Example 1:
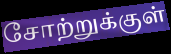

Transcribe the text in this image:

சோற்றுக்குள்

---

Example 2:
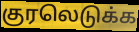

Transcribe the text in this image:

குரலெடுக்க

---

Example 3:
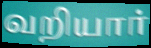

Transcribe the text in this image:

வறியார்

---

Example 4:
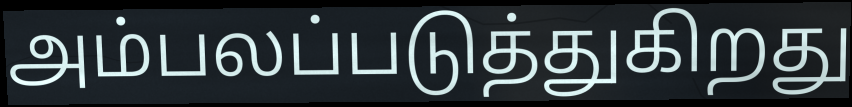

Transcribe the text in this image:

அம்பலப்படுத்துகிறது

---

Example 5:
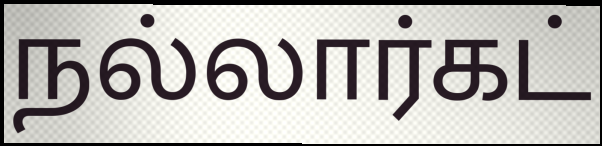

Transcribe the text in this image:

நல்லார்கட்